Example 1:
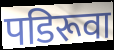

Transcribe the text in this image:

पडिरूवा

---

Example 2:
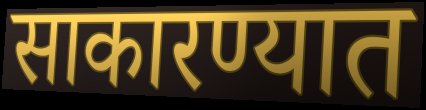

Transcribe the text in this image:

साकारण्यात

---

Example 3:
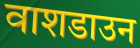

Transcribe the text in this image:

वाशडाउन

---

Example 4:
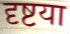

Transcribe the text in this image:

दृष्टया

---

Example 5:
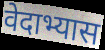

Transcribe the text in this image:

वेदाभ्यास